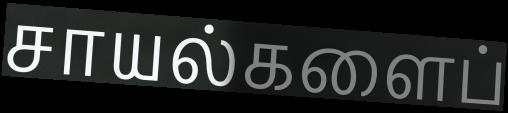
சாயல்களைப்